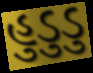
હુડુડુ